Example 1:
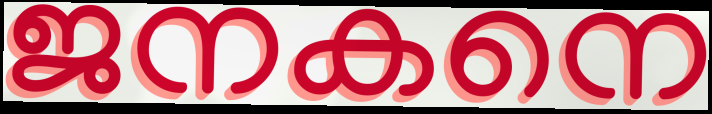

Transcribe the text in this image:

ജനകനെ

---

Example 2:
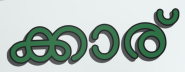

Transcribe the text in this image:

ക്കാര്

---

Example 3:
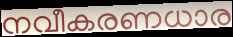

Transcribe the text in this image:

നവീകരണധാര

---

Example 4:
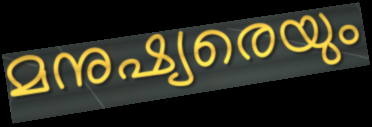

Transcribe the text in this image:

മനുഷ്യരെയും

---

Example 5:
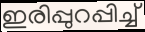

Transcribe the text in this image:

ഇരിപ്പുറപ്പിച്ച്